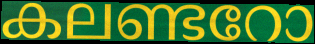
കലണ്ടറോ